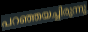
പറഞ്ഞയച്ചിരുന്നു